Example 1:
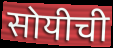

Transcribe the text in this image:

सोयीची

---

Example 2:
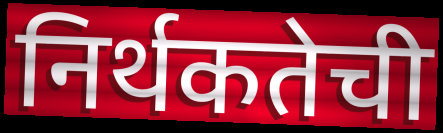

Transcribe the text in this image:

निर्थकतेची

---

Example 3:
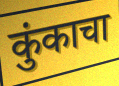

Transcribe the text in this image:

कुंकाचा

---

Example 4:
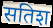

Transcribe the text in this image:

सतिश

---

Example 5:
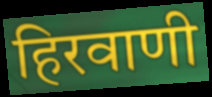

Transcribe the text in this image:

हिरवाणी